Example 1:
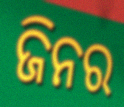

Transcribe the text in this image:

ଜିନର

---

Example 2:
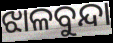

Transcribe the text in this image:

ଝାଳବୁନ୍ଦା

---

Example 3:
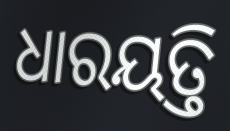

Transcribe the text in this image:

ଧାରୟତ୍ତି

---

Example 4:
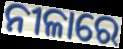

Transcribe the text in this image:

ନୀଳାରେ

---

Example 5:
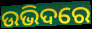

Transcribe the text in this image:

ଉଭିଦରେ